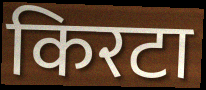
किरटा